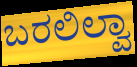
ಬರಲಿಲ್ವಾ